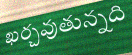
ఖర్చవుతున్నది